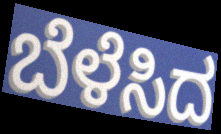
ಬೆಳೆಸಿದ